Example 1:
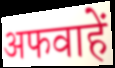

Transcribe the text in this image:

अफवाहें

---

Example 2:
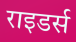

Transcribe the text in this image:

राइडर्स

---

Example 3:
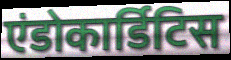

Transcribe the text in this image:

एंडोकार्डिटिस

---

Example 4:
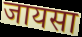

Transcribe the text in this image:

जायसा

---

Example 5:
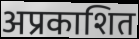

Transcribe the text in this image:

अप्रकाशित